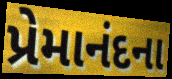
પ્રેમાનંદના